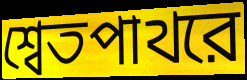
শ্বেতপাথরে